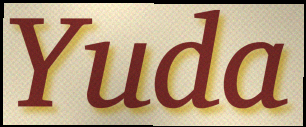
Yuda